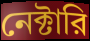
নেক্টারি